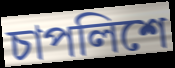
চাপলিশে